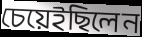
চেয়েইছিলেন